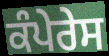
ਕੰਪੇਰੇਸ